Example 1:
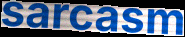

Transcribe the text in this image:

sarcasm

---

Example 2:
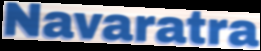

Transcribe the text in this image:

Navaratra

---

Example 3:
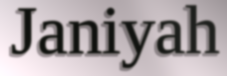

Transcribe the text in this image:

Janiyah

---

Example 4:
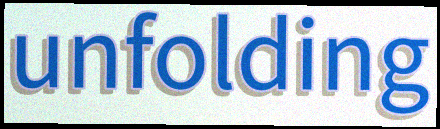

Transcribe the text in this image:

unfolding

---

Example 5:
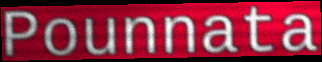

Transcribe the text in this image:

Pounnata